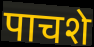
पाचशे